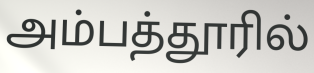
அம்பத்தூரில்